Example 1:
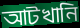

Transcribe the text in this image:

আটখানি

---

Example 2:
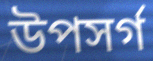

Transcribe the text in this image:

উপসর্গ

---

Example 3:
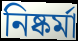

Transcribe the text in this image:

নিষ্কর্মা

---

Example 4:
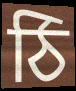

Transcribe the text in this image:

ঠি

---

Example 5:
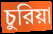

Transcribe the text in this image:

চুরিয়া